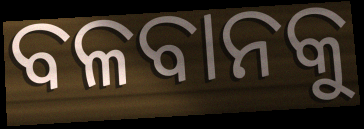
ବଳବାନକୁ